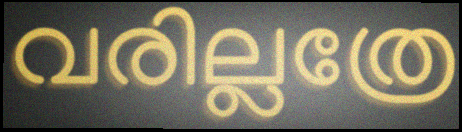
വരില്ലത്രേ